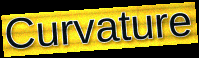
Curvature